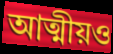
আত্মীয়ও